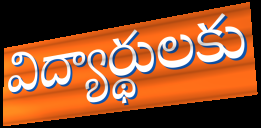
విద్యార్థులకు